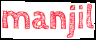
manjil